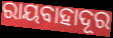
ରାୟବାହାଦୂର